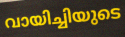
വായിച്ചിയുടെ